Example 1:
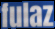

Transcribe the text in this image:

fulaz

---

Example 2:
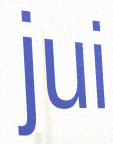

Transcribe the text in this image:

jui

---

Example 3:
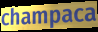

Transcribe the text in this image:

champaca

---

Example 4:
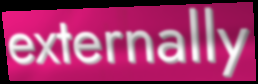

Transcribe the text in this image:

externally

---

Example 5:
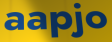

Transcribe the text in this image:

aapjo